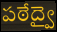
పఠేద్వై